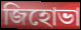
জিহোভা